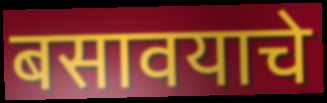
बसावयाचे